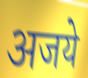
अजये